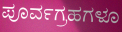
ಪೂರ್ವಗ್ರಹಗಳೂ